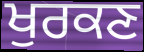
ਖੁਰਕਣ